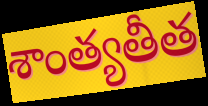
శాంత్యతీత